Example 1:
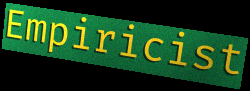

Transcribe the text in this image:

Empiricist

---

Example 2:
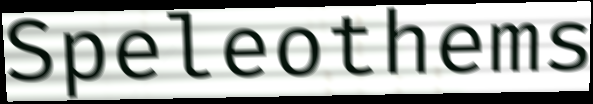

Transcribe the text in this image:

Speleothems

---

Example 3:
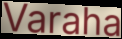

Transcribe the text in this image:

Varaha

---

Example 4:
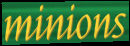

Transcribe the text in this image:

minions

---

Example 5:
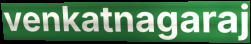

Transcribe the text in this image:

venkatnagaraj